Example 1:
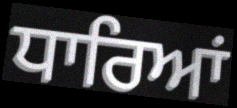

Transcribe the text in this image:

ਧਾਰਿਆਂ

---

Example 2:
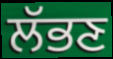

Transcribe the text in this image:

ਲੱਭਣ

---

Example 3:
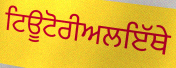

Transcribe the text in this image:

ਟਿਊਟੋਰੀਅਲਇੱਥੇ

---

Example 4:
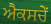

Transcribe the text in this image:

ਐਕਸਚੇਂ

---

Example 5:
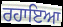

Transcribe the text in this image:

ਰਹਾਇਆ